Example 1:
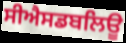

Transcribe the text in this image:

ਸੀਐਸਡਬਲਿਊ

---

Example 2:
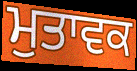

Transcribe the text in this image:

ਮੁਤਾਵਕ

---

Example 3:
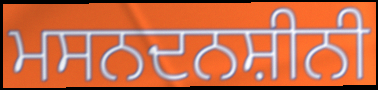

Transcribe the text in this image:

ਮਸਨਦਨਸ਼ੀਨੀ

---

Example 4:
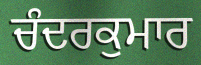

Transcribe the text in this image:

ਚੰਦਰਕੁਮਾਰ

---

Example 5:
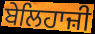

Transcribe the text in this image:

ਬੇਲਿਹਾਜ਼ੀ